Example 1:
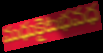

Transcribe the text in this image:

మధుకైటభవధ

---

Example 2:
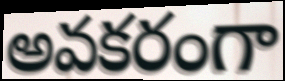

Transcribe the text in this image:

అవకరంగా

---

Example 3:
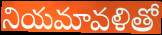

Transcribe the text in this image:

నియమావళితో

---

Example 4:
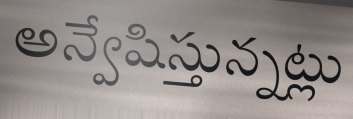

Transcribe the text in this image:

అన్వేషిస్తున్నట్లు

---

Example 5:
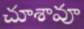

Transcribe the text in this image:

చూశావూ